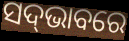
ସଦ୍‌ଭାବରେ